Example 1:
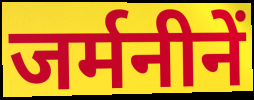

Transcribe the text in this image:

जर्मनीनें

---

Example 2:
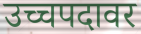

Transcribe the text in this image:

उच्चपदावर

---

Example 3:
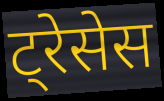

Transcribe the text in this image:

ट्रेसेस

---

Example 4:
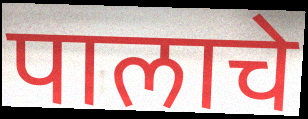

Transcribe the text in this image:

पालाचे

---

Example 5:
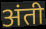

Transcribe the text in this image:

अंती